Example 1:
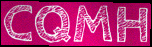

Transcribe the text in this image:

CQMH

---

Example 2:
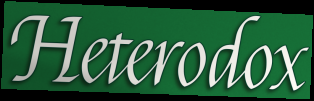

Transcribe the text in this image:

Heterodox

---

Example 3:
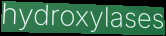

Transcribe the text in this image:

hydroxylases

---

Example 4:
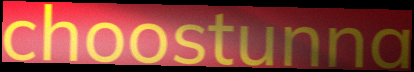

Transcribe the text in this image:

choostunna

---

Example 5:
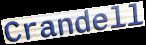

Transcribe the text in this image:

Crandell